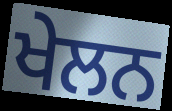
ਖੇਲਨ